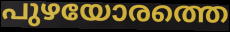
പുഴയോരത്തെ